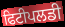
ਫਿਟੀਪਲਡੀ